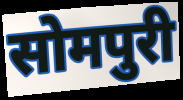
सोमपुरी